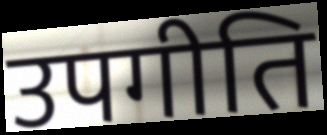
उपगीति